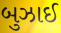
બુઝાઈ